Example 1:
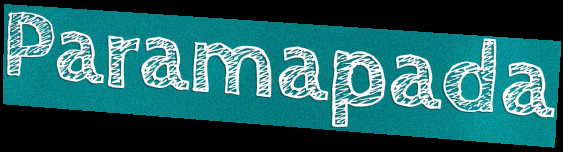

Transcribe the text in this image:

Paramapada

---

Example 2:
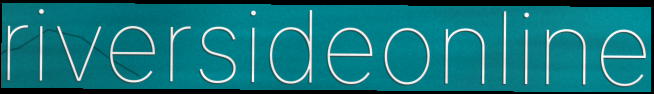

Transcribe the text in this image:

riversideonline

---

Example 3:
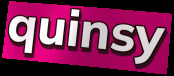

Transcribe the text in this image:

quinsy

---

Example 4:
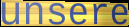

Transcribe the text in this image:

unsere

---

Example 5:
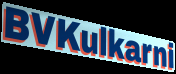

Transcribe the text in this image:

BVKulkarni